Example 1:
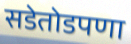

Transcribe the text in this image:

सडेतोडपणा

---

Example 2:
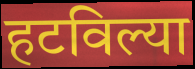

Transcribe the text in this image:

हटविल्या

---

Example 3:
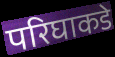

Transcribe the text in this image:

परिघाकडे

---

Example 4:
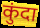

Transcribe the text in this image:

कुंदा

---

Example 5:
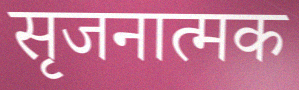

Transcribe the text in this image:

सृजनात्मक